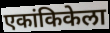
एकांकिकेला